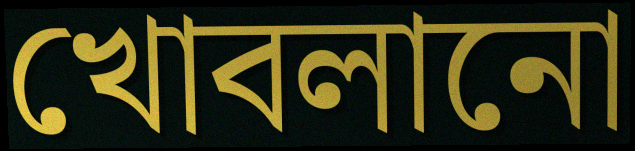
খোবলানো